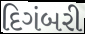
દિગંબરી